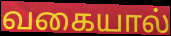
வகையால்